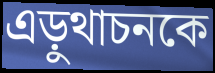
এড়ুথাচনকে